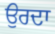
ਉਰਦਾ